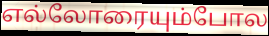
எல்லோரையும்போல